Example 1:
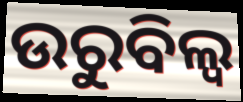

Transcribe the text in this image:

ଉରୁବିଲ୍ୱ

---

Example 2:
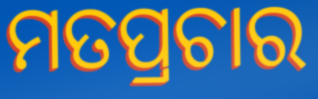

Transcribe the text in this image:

ମତପ୍ରଚାର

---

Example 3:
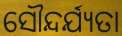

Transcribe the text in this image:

ସୌନ୍ଦର୍ଯ୍ୟତା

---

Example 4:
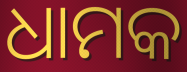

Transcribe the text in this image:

ଧାମକ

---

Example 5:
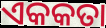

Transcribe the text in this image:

ଏକକତା